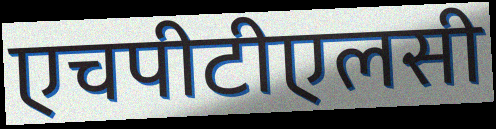
एचपीटीएलसी